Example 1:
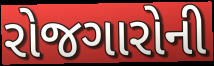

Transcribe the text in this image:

રોજગારોની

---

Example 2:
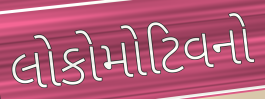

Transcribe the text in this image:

લોકોમોટિવનો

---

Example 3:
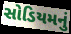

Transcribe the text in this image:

સોડિયમનું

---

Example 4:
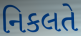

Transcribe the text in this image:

નિકલતે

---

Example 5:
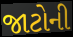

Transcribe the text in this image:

જાટોની